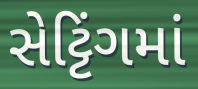
સેટ્ટિંગમાં